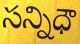
సన్నిధౌ